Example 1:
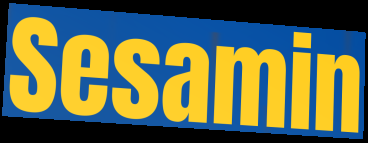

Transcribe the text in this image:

Sesamin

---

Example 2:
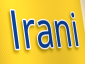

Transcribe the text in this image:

Irani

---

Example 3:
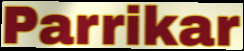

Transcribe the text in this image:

Parrikar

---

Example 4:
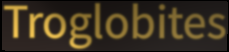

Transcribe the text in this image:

Troglobites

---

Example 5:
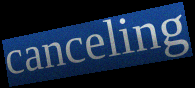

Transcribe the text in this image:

canceling